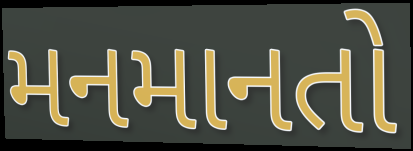
મનમાનતો